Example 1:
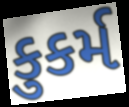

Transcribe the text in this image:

કુકર્મ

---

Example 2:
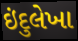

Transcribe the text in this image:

ઇંદુલેખા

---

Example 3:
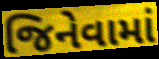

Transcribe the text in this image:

જિનેવામાં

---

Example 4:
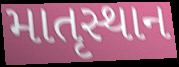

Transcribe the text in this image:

માતૃસ્થાન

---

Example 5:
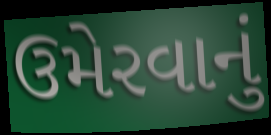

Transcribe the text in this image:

ઉમેરવાનું